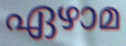
ഏഴാമ